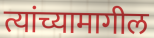
त्यांच्यामागील